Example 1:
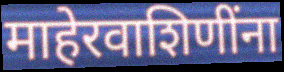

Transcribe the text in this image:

माहेरवाशिणींना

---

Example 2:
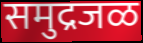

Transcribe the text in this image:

समुद्रजळ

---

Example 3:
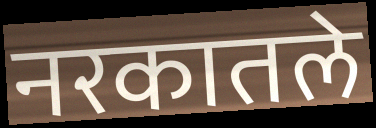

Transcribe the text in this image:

नरकातले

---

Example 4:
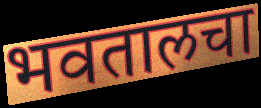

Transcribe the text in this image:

भवतालचा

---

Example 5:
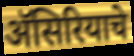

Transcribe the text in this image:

ॲसिरियाचे